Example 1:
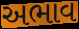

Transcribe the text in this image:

અભાવ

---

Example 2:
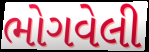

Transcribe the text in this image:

ભોગવેલી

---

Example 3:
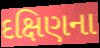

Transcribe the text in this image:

દક્ષિણના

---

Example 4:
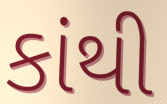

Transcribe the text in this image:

કાંથી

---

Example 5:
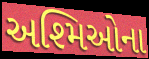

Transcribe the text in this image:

અશ્મિઓના